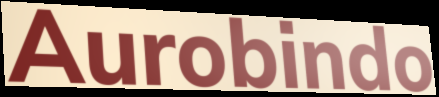
Aurobindo